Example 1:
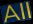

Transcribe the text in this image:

AII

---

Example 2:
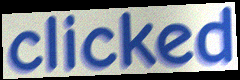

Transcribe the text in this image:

clicked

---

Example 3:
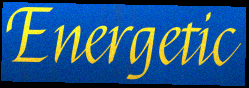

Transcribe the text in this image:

Energetic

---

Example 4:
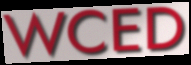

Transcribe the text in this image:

WCED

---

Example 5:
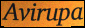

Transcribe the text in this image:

Avirupa